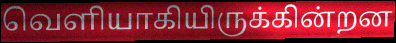
வெளியாகியிருக்கின்றன